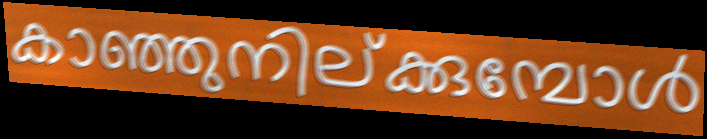
കാഞ്ഞുനില്ക്കുമ്പോൾ